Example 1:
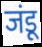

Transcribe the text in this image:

जंडू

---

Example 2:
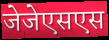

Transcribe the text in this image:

जेजेएसएस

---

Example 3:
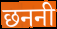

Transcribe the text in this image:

छननी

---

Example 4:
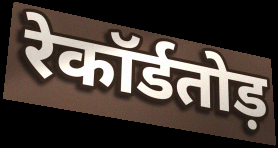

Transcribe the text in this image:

रेकॉर्डतोड़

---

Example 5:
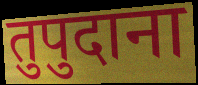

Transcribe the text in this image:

तुपुदाना